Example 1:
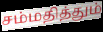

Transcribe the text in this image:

சம்மதித்தும்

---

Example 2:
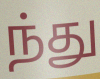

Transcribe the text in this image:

ந்து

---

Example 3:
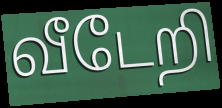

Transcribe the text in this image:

வீடேறி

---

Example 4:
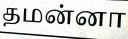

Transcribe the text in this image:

தமன்னா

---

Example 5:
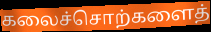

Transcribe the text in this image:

கலைச்சொற்களைத்